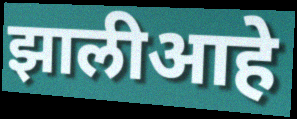
झालीआहे